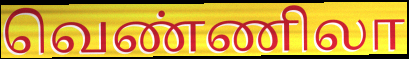
வெண்ணிலா